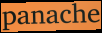
panache